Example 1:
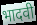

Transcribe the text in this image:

भादवी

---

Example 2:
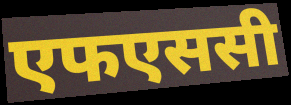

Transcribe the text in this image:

एफएससी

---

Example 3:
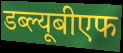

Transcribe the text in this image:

डब्ल्यूबीएफ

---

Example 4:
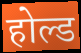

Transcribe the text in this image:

होल्ड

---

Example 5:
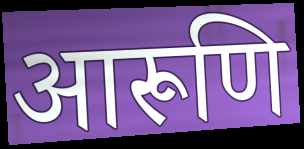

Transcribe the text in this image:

आरूणि